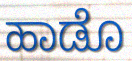
ಹಾಡೊ